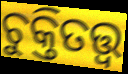
ଚୁକ୍ତିତତ୍ତ୍ଵ